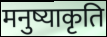
मनुष्याकृति